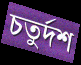
চতুৰ্দশ